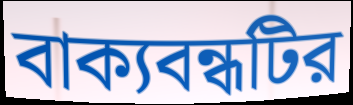
বাক্যবন্ধটির